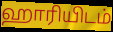
ஹாரியிடம்